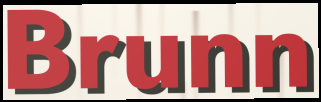
Brunn